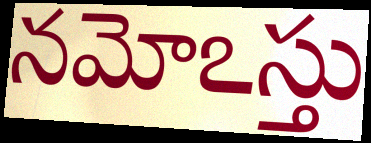
నమోఽస్తు